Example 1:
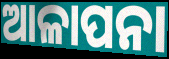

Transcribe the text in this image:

ଆଳାପନା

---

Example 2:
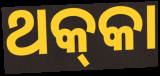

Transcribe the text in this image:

ଥକ୍‍କା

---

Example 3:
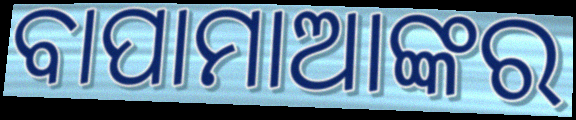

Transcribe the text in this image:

ବାପାମାଆଙ୍କର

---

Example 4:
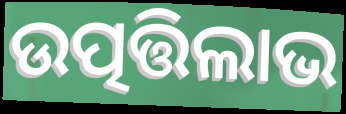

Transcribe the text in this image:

ଉତ୍ପତ୍ତିଲାଭ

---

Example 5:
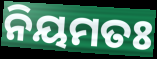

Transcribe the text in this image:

ନିୟମତଃ